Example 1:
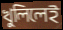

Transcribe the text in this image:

খুলিলেই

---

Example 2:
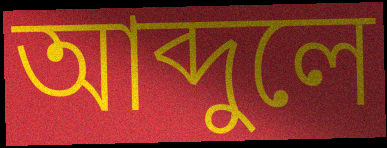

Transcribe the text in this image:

আব্দুলে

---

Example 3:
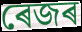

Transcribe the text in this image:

ৰেজৰ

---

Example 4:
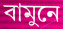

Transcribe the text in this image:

বামুনে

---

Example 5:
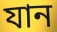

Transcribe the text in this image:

যান